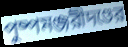
পুষ্পমঞ্জরীদণ্ডের